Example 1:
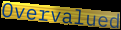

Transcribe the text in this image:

Overvalued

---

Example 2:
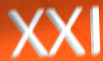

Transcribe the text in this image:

XXI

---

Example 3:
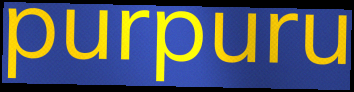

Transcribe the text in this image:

purpuru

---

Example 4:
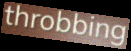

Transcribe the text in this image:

throbbing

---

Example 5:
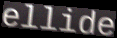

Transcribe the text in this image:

ellide